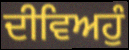
ਦੀਵਿਅਹੁੰ